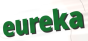
eureka